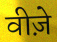
वीज़े